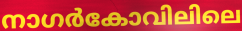
നാഗർകോവിലിലെ